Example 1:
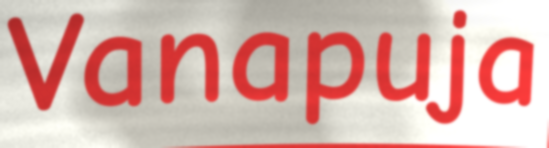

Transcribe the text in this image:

Vanapuja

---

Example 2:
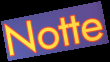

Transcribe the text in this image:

Notte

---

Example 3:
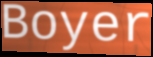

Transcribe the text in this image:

Boyer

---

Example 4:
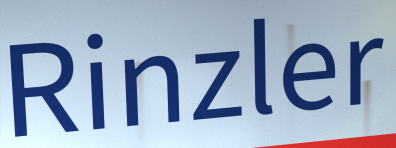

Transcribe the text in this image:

Rinzler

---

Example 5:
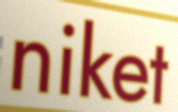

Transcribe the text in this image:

niket